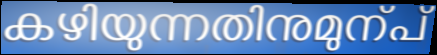
കഴിയുന്നതിനുമുന്പ്